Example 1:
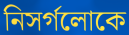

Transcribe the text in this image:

নিসর্গলোকে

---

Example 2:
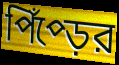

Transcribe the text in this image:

পিঁপ্ড়ের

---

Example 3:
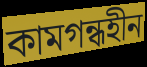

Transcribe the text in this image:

কামগন্ধহীন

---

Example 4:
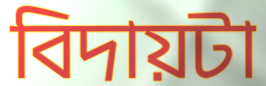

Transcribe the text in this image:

বিদায়টা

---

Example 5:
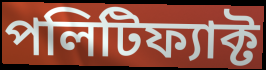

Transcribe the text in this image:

পলিটিফ্যাক্ট